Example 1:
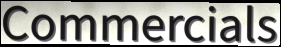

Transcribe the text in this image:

Commercials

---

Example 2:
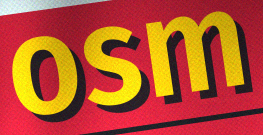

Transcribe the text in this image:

osm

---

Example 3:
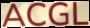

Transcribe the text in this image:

ACGL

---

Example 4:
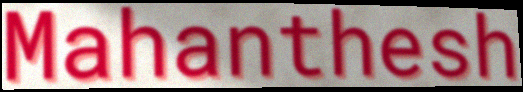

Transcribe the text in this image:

Mahanthesh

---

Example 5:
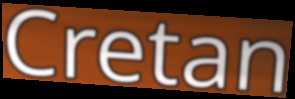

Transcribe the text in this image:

Cretan